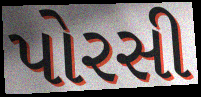
પોરસી